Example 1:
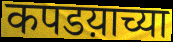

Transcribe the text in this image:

कपडय़ाच्या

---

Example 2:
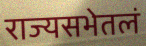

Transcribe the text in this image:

राज्यसभेतलं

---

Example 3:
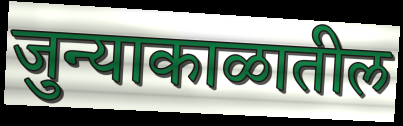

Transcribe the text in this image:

जुन्याकाळातील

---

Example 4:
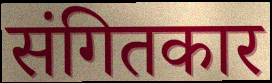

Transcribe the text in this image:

संगितकार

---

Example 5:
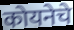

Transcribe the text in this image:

कोयनेचे